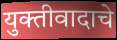
युक्तीवादाचे